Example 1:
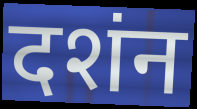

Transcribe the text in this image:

दशंन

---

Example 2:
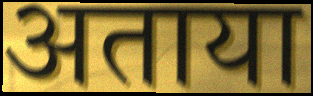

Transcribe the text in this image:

अताया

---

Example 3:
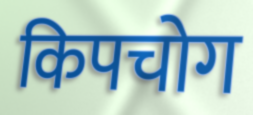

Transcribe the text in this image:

किपचोग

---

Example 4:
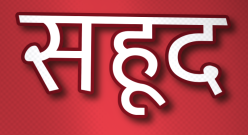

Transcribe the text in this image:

सहूद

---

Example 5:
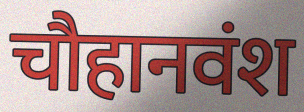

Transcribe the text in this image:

चौहानवंश